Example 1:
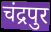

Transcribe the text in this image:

चंद्रपुर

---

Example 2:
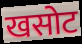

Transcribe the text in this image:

खसोट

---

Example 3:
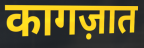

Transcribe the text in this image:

कागज़ात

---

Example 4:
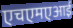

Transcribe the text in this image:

एचएमएआई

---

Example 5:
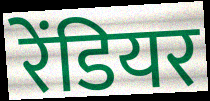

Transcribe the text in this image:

रेंडियर